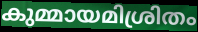
കുമ്മായമിശ്രിതം